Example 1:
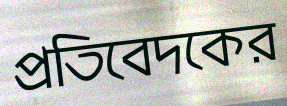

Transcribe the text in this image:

প্রতিবেদকের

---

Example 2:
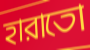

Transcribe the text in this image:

হারাতো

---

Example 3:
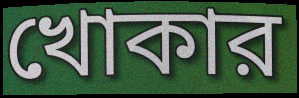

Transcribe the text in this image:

খোকার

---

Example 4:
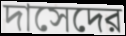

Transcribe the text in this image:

দাসেদের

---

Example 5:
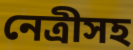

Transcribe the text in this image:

নেত্রীসহ